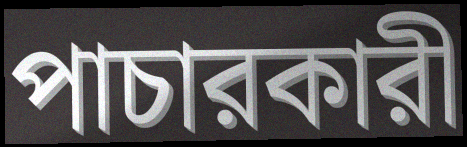
পাচারকারী